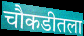
चौकडीतला